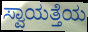
ಸ್ವಾಯತ್ತೆಯ